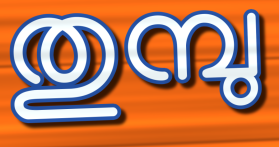
തുമ്പു